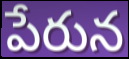
పేరున